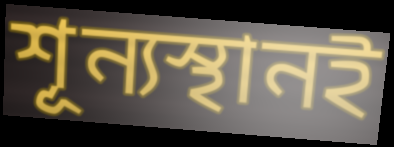
শূন্যস্থানই